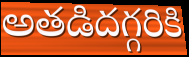
అతడిదగ్గరికి